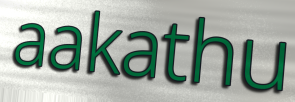
aakathu